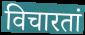
विचारतां